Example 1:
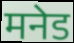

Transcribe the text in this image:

मनेड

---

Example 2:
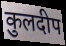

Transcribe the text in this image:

कुलदीप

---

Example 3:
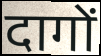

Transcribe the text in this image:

दागों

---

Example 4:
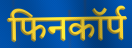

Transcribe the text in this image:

फिनकॉर्प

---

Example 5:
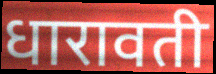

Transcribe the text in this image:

धारावती